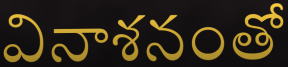
వినాశనంతో